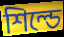
শিল্ডে